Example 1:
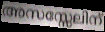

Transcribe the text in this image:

അസസ്സേലിന്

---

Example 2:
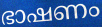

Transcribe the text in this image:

ഭാഷണം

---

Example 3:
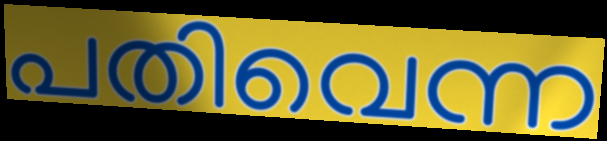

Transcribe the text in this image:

പതിവെന്ന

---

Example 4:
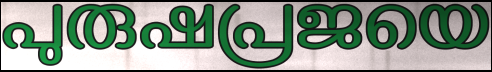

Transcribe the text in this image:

പുരുഷപ്രജയെ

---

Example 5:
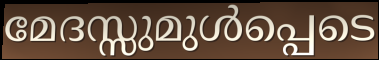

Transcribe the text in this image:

മേദസ്സുമുൾപ്പെടെ